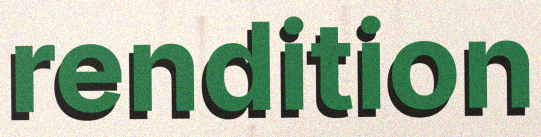
rendition